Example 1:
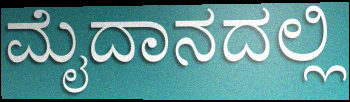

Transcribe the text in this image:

ಮೈದಾನದಲ್ಲಿ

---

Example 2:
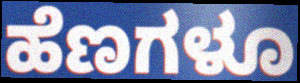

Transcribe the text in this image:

ಹೆಣಗಳೂ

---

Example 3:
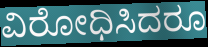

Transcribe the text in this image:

ವಿರೋಧಿಸಿದರೂ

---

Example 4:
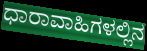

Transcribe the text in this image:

ಧಾರಾವಾಹಿಗಳಲ್ಲಿನ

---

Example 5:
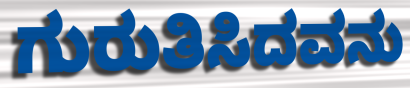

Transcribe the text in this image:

ಗುರುತಿಸಿದವನು